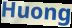
Huong